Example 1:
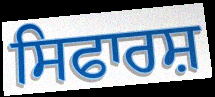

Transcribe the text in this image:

ਸਿਫਾਰਸ਼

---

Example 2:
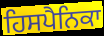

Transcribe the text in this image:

ਹਿਸਪੈਨਿਕਾ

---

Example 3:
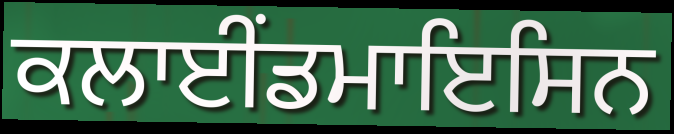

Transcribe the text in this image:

ਕਲਾਈਂਡਮਾਇਸਿਨ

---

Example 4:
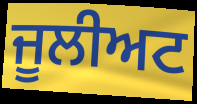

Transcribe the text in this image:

ਜੂਲੀਅਟ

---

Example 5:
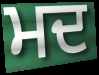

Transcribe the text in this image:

ਮਦ